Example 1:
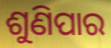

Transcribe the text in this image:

ଶୁଣିପାର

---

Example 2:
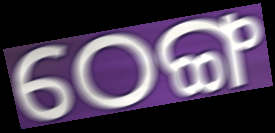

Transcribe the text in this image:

ଠେଙ୍ଗ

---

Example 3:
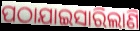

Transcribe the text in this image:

ପଠାଯାଇସାରିଲାଣି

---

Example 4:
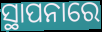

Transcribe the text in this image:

ସ୍ଥାପନାରେ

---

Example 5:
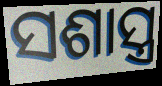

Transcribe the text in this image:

ସଶାସ୍ତ୍ର